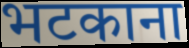
भटकाना